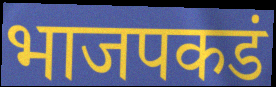
भाजपकडं